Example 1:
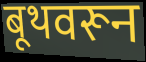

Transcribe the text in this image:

बूथवरून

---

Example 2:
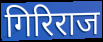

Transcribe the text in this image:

गिरिराज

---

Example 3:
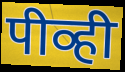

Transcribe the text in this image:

पीव्ही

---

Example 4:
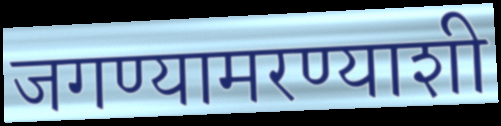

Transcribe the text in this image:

जगण्यामरण्याशी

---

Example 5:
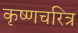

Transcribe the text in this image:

कृष्णचरित्र